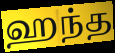
ஹந்த